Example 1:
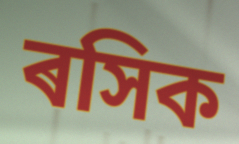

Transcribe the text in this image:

ৰসিক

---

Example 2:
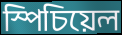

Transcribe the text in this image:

স্পিচিয়েল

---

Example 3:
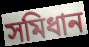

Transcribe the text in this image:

সমিধান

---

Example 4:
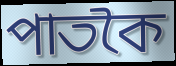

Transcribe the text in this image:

পাতকৈ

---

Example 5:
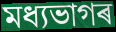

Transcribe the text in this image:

মধ্যভাগৰ